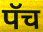
पॅच